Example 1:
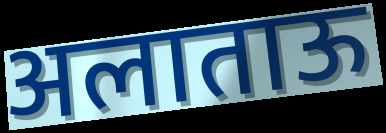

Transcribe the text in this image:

अलाताऊ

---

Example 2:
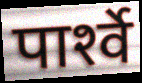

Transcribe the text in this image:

पार्श्वे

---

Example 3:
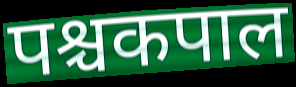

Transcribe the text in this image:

पश्चकपाल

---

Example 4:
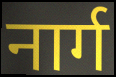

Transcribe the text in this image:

नार्ग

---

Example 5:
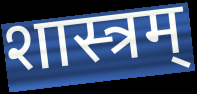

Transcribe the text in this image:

शास्त्रम्